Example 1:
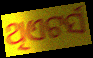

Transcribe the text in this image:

ଥିଏଟର୍ସ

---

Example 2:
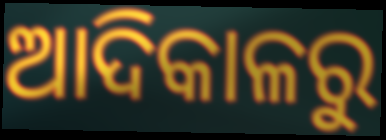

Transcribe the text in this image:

ଆଦିକାଳରୁ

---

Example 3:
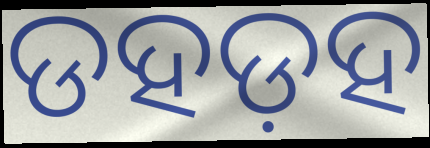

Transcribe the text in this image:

ଡହଡ଼ହ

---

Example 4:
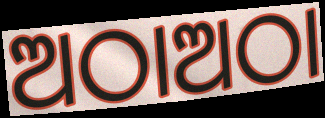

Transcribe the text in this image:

ଅଠାଅଠା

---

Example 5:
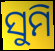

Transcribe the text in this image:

ସୁମି